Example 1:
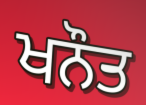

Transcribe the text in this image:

ਖਨੌਤ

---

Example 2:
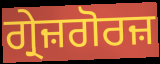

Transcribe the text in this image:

ਗ੍ਰੇਜ਼ਗੋਰਜ਼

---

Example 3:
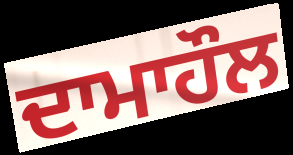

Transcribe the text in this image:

ਦਾਮਾਹੌਲ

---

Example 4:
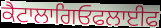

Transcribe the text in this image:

ਕੈਟਾਲਾਗਿਓਫਲਾਈਫ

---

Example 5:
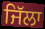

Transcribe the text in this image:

ਜਿੱਲਾ